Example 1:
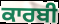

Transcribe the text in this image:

ਕਾਰਬੀ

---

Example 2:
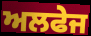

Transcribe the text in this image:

ਅਲਫੇਜ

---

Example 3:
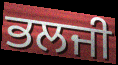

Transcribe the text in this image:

ਭਲਜੀ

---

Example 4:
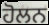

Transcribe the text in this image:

ਹੋਲਨ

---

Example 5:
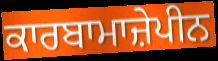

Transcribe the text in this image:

ਕਾਰਬਾਮਾਜ਼ੇਪੀਨ